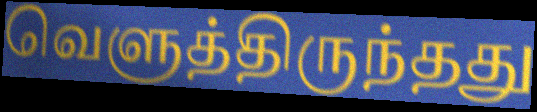
வெளுத்திருந்தது